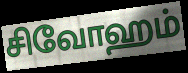
சிவோஹம்